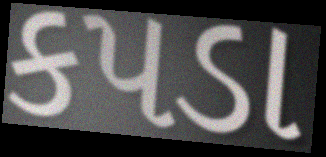
કપડા